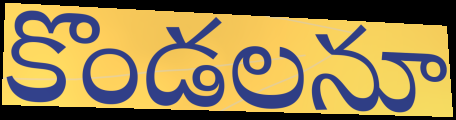
కొండలనూ